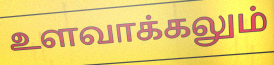
உளவாக்கலும்